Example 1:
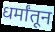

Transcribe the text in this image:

धर्मांतून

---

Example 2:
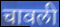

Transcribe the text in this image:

चावली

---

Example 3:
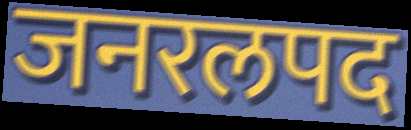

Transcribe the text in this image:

जनरलपद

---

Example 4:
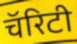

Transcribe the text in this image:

चॅरिटी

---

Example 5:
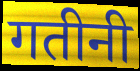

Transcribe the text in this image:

गतीनी